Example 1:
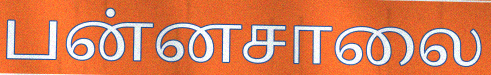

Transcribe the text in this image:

பன்னசாலை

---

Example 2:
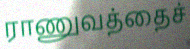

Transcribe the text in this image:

ராணுவத்தைச்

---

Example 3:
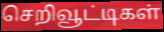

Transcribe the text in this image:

செறிவூட்டிகள்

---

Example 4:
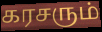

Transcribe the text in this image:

கரசரும்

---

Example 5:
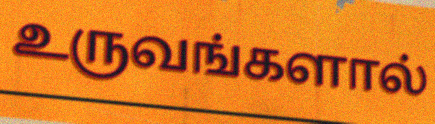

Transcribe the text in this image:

உருவங்களால்